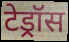
टेड्रॉस